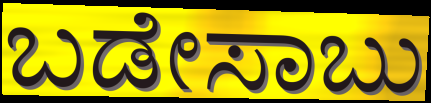
ಬಡೇಸಾಬು